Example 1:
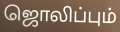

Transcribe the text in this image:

ஜொலிப்பும்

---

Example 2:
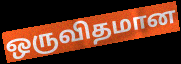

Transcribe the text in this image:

ஒருவிதமான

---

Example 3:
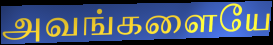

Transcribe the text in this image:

அவங்களையே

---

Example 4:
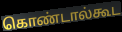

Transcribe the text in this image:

கொண்டால்கூட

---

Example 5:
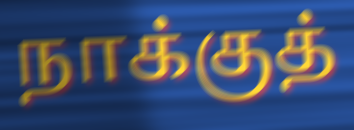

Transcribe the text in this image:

நாக்குத்